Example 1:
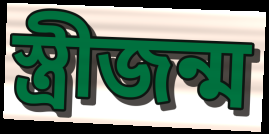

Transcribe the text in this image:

স্ত্রীজন্ম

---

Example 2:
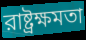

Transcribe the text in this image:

রাষ্ট্রক্ষমতা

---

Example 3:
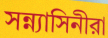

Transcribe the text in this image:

সন্ন্যাসিনীরা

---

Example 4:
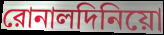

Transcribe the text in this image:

রোনালদিনিয়ো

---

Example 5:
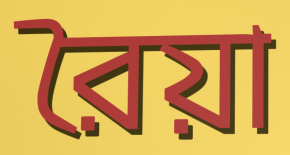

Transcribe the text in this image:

রৈয়া